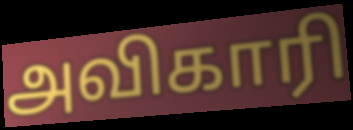
அவிகாரி